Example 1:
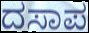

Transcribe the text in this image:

ದಸಾಪ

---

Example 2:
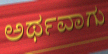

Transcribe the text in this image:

ಅರ್ಥವಾಗು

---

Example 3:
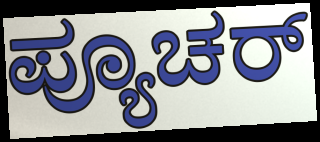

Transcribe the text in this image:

ಪ್ಯೂಚರ್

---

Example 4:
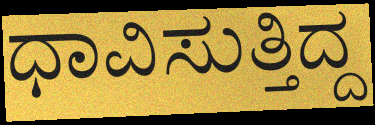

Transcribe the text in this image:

ಧಾವಿಸುತ್ತಿದ್ದ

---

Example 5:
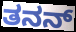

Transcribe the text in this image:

ತನನ್